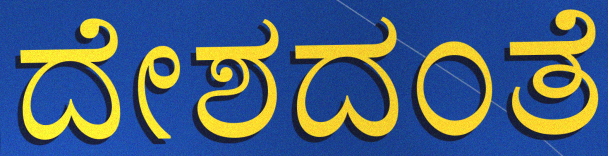
ದೇಶದಂತೆ